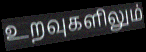
உறவுகளிலும்